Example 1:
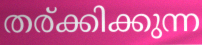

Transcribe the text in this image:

തര്ക്കിക്കുന്ന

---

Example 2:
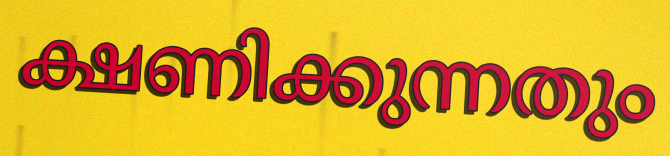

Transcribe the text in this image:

ക്ഷണിക്കുന്നതും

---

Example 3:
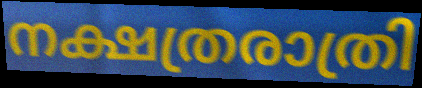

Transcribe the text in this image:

നക്ഷത്രരാത്രി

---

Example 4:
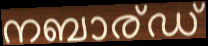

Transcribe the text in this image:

നബാര്ഡ്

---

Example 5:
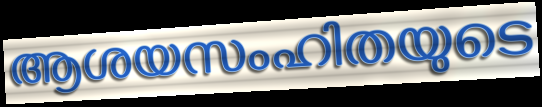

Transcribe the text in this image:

ആശയസംഹിതയുടെ